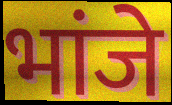
भांजे